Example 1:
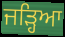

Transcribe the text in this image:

ਜੜ੍ਹਿਆ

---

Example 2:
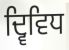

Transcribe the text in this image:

ਦ੍ਵਿਵਿਧ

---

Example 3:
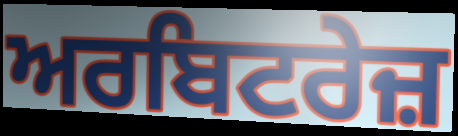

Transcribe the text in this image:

ਅਰਬਿਟਰੇਜ਼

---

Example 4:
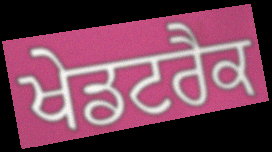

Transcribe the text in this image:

ਖੇਡਟਰੈਕ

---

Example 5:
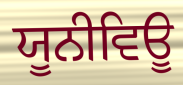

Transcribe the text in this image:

ਯੂਨੀਵਿਊ